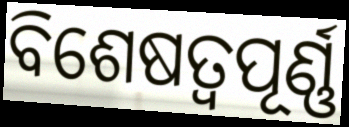
ବିଶେଷତ୍ୱପୂର୍ଣ୍ଣ